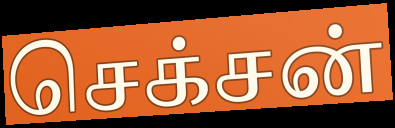
செக்சன்